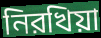
নিরখিয়া